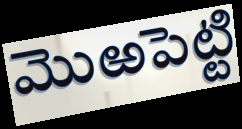
మొఱపెట్టి